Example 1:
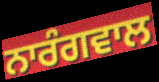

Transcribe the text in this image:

ਨਾਰੰਗਵਾਲ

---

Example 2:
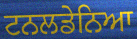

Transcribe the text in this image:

ਟਨਲਡੇਨਿਆ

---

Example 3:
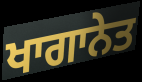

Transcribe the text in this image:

ਖਾਗਾਨੇਤ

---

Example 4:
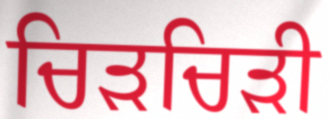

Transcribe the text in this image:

ਚਿੜਚਿੜੀ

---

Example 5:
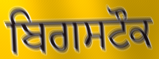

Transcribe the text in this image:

ਬਿਗਸਟੌਕ